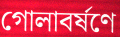
গোলাবর্ষণে